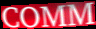
COMM